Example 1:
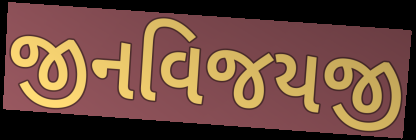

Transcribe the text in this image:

જીનવિજયજી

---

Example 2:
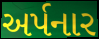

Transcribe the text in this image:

અર્પનાર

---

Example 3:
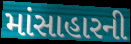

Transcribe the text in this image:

માંસાહારની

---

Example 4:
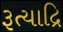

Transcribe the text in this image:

રૂત્યાદ્રિ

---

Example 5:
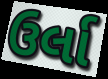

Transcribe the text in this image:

ઉર્લા